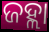
ଜହ୍ଲା